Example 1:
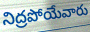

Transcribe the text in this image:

నిద్రపోయేవారు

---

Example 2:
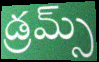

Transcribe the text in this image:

డ్రమ్స్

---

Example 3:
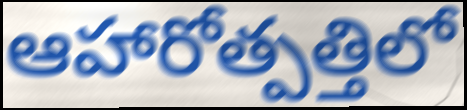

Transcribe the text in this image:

ఆహారోత్పత్తిలో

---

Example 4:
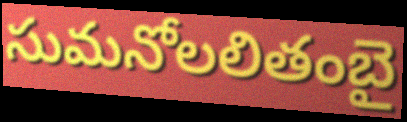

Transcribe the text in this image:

సుమనోలలితంబై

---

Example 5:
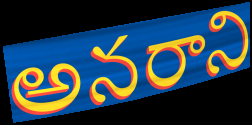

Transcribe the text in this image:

అనరాని